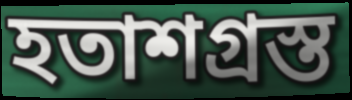
হতাশগ্ৰস্ত